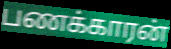
பணக்காரன்